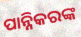
ପାନ୍ନିକରଙ୍କ